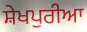
ਸ਼ੇਖਪੁਰੀਆ